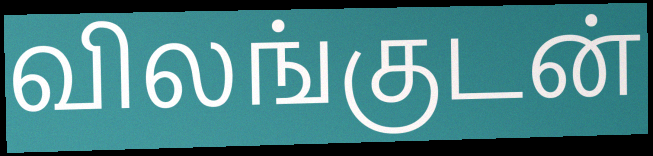
விலங்குடன்